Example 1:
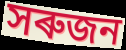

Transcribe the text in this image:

সৰুজন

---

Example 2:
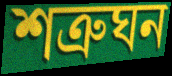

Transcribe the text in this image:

শত্ৰুঘন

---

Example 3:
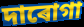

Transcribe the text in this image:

দাৰোগা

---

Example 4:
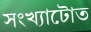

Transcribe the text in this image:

সংখ্যাটোত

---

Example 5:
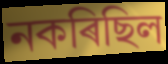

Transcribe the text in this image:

নকৰিছিল